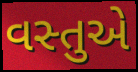
વસ્તુએ